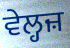
ਵੇਲ੍ਹਜ਼